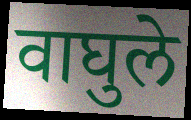
वाघुले